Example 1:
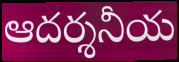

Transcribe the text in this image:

ఆదర్శనీయ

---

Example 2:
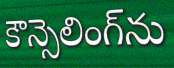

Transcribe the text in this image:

కౌన్సెలింగ్‌ను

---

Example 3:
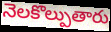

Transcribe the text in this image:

నెలకొల్పుతారు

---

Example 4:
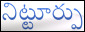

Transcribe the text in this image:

నిట్టూర్పు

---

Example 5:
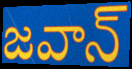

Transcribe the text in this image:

జవాన్